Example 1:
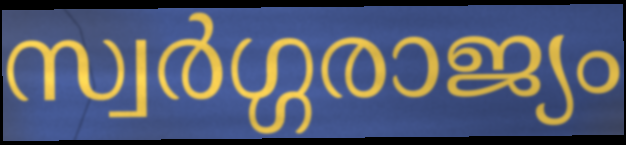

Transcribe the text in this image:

സ്വർഗ്ഗരാജ്യം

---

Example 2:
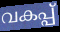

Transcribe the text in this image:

വകപ്പ്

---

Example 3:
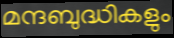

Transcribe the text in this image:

മന്ദബുദ്ധികളും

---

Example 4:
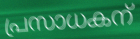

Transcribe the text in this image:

പ്രസാധകന്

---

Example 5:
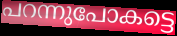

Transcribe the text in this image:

പറന്നുപോകട്ടെ